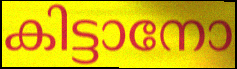
കിട്ടാനോ